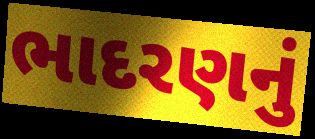
ભાદરણનું